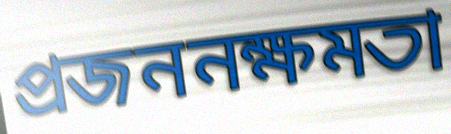
প্রজননক্ষমতা